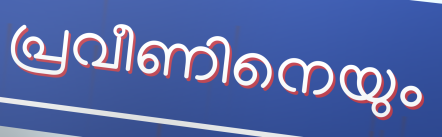
പ്രവീണിനെയും